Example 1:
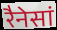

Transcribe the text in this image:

रैनेसां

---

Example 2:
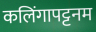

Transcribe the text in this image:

कलिंगापट्टनम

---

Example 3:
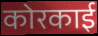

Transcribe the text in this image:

कोरकाई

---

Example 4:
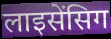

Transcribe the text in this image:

लाइसेंसिग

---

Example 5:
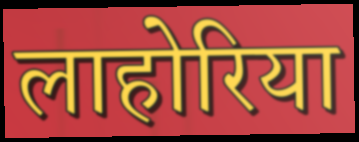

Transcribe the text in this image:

लाहोरिया